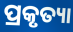
ପ୍ରକୃତ୍ୟା